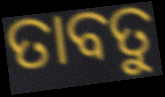
ତାବତୁ